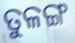
ତୁଳଙ୍ଗ